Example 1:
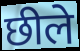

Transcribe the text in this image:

छीले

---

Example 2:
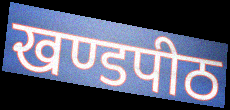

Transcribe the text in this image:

खण्डपीठ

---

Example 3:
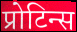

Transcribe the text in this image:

प्रोटिन्स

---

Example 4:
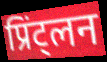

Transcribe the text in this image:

प्रिंट्लन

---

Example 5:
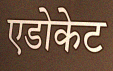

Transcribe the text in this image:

एडोकेट